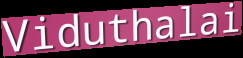
Viduthalai